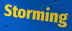
Storming